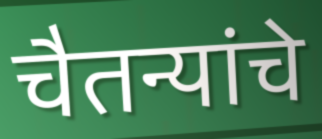
चैतन्यांचे